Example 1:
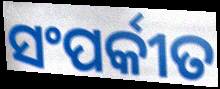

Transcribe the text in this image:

ସଂପର୍କୀତ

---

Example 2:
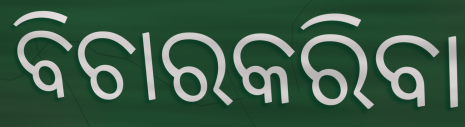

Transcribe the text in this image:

ବିଚାରକରିବା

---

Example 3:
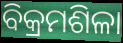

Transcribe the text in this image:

ବିକ୍ରମଶିଳା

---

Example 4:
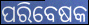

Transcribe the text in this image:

ପରିବେଷକ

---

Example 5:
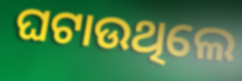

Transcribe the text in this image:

ଘଟାଉଥିଲେ